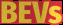
BEVs